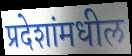
प्रदेशांमधील